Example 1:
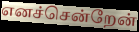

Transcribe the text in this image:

எனச்சென்றேன்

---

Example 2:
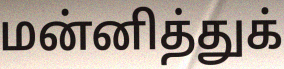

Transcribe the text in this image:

மன்னித்துக்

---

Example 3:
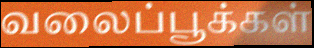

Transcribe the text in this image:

வலைப்பூக்கள்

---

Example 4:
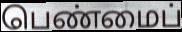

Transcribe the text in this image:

பெண்மைப்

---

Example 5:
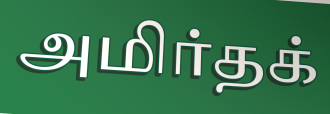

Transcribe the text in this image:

அமிர்தக்